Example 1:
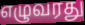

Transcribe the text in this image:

எழுவரது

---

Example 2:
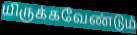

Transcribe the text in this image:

யிருக்கவேண்டும்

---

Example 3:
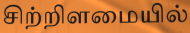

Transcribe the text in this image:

சிற்றிளமையில்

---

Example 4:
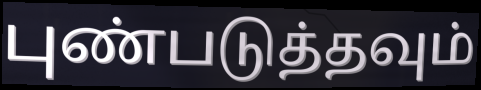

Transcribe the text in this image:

புண்படுத்தவும்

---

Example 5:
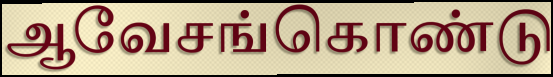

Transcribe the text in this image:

ஆவேசங்கொண்டு